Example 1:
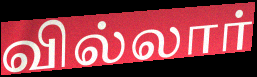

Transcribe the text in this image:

வில்லார்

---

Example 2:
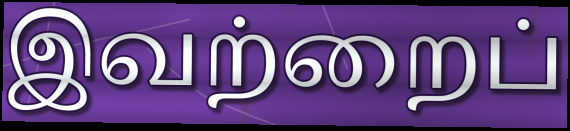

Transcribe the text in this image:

இவற்றைப்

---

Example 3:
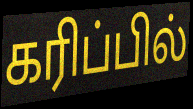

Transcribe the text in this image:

கரிப்பில்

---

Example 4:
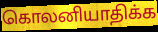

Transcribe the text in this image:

கொலனியாதிக்க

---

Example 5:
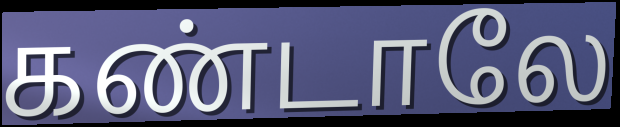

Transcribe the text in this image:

கண்டாலே